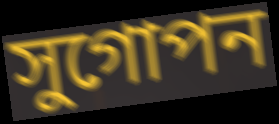
সুগোপন